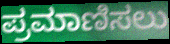
ಪ್ರಮಾಣಿಸಲು